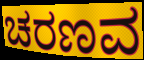
ಚರಣವ